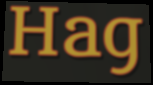
Hag